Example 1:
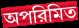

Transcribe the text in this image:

অপরিমিত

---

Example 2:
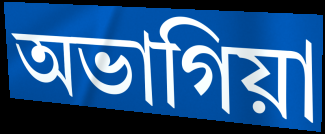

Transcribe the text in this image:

অভাগিয়া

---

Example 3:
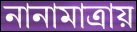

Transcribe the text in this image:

নানামাত্রায়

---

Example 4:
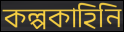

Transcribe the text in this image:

কল্পকাহিনি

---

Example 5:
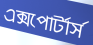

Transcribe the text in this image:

এক্সপোর্টার্স